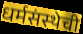
धर्मसंस्थेची